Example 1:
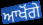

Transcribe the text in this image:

ਆਖੋਂਗੇ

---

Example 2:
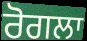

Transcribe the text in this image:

ਰੋਗਲਾ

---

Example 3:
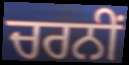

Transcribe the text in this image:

ਚਰਨੀਂ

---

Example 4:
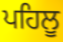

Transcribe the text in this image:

ਪਹਿਲੂ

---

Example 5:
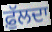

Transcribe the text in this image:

ਫ਼ੁੱਲਦਾ